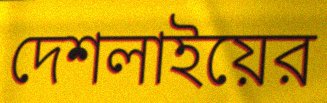
দেশলাইয়ের